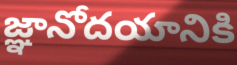
జ్ఞానోదయానికి